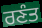
ਰਣੰਤ